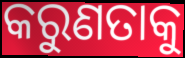
କରୁଣତାକୁ